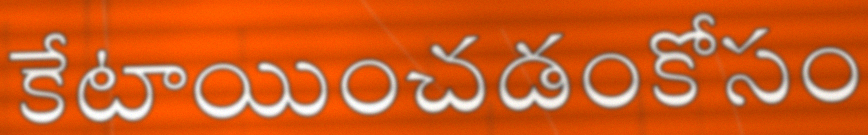
కేటాయించడంకోసం